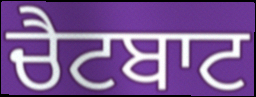
ਚੈਟਬਾਟ